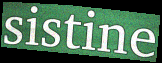
sistine